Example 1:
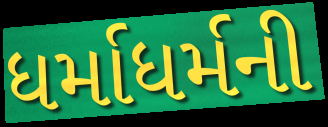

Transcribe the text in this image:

ધર્માધર્મની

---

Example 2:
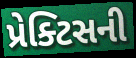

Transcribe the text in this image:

પ્રેક્ટિસની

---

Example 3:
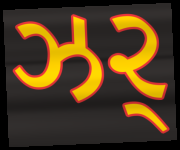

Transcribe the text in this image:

ઝર્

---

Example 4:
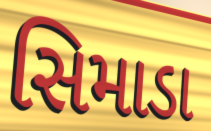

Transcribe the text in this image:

સિમાડા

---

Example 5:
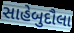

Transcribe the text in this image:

સાહેબુદૌલા